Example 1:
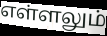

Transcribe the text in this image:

எள்ளலும்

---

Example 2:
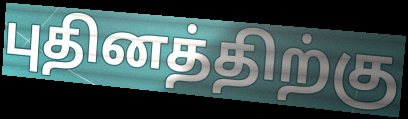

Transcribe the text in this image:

புதினத்திற்கு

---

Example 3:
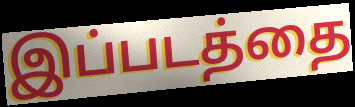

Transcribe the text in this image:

இப்படத்தை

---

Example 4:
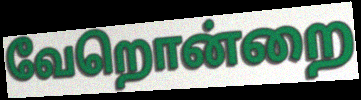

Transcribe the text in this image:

வேறொன்றை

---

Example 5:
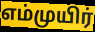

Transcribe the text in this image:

எம்முயிர்